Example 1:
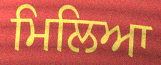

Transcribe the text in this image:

ਮਿਲਿਆ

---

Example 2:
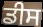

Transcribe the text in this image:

ਡੀਸ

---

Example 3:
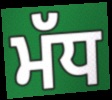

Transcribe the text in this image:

ਮੱਧ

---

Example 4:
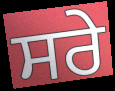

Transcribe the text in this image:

ਸਰੇ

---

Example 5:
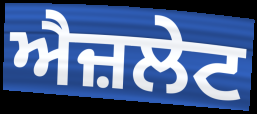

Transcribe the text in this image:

ਐਜ਼ਲੇਟ